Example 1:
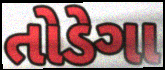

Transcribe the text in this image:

તોડેગા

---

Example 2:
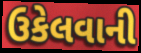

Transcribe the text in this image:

ઉકેલવાની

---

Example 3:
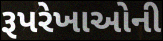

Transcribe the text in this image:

રૂપરેખાઓની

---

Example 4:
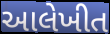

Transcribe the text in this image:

આલેખીત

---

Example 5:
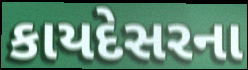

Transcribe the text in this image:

કાયદેસરના